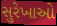
સુરેખાઓ